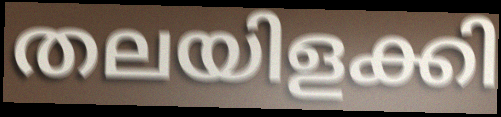
തലയിളക്കി